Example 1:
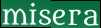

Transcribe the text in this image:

misera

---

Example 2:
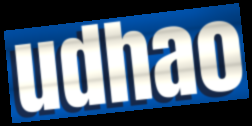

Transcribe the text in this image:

udhao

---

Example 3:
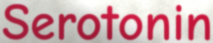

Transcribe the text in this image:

Serotonin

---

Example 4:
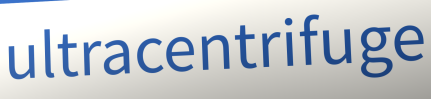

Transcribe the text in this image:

ultracentrifuge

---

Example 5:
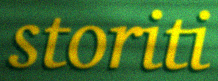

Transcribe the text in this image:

storiti